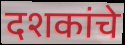
दशकांचे